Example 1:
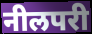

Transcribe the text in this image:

नीलपरी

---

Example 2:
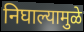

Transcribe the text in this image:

निघाल्यामुळे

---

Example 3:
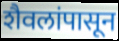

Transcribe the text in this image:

शैवलांपासून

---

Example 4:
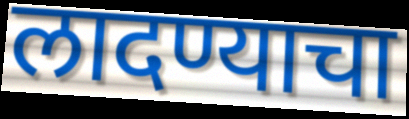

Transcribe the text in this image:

लादण्याचा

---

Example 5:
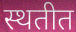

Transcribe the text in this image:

स्थतीत